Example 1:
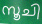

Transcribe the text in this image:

സൂചി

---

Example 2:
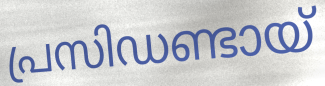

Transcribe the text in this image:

പ്രസിഡണ്ടായ്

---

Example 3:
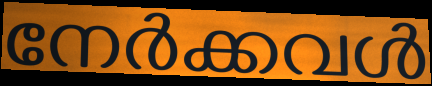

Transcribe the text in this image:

നേർക്കവൾ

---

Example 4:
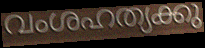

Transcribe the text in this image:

വംശഹത്യക്കു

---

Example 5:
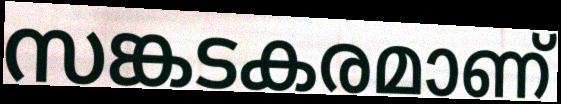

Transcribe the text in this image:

സങ്കടകരമാണ്